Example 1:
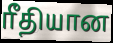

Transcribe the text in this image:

ரீதியான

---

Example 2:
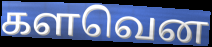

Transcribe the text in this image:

களவென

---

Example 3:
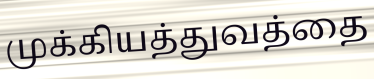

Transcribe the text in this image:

முக்கியத்துவத்தை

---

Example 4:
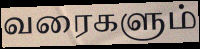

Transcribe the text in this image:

வரைகளும்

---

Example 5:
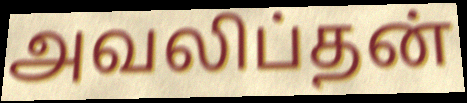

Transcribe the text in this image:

அவலிப்தன்